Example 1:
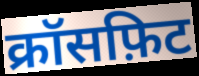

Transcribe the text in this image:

क्रॉसफ़िट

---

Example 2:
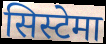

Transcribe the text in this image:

सिस्टेमा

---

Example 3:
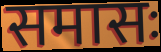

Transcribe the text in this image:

समासः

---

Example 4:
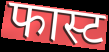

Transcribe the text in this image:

फास्ट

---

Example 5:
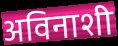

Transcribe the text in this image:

अविनाशी